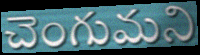
చెంగుమని